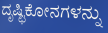
ದೃಷ್ಟಿಕೋನಗಳನ್ನು